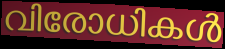
വിരോധികൾ